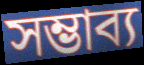
সম্ভাব্য